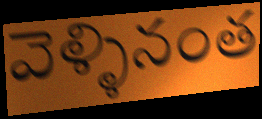
వెళ్ళినంత